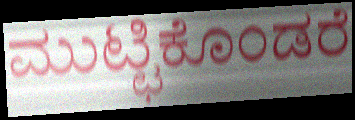
ಮುಟ್ಟಿಕೊಂಡರೆ